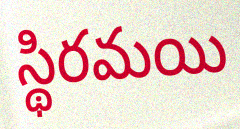
స్థిరమయి